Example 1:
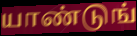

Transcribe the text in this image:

யாண்டுங்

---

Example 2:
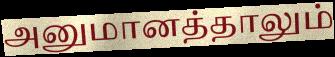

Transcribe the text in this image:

அனுமானத்தாலும்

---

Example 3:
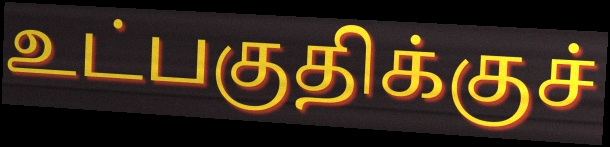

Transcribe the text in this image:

உட்பகுதிக்குச்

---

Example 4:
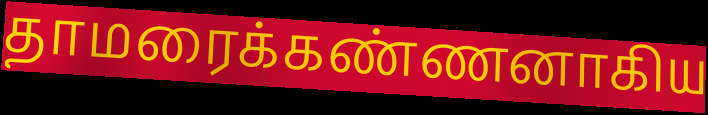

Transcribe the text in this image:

தாமரைக்கண்ணனாகிய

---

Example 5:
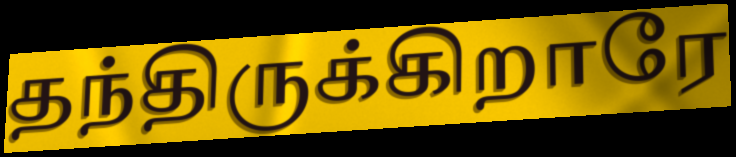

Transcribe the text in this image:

தந்திருக்கிறாரே